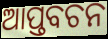
ଆପ୍ତବଚନ